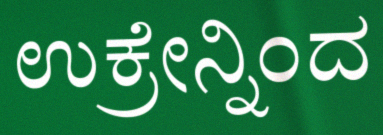
ಉಕ್ರೇನ್ನಿಂದ